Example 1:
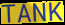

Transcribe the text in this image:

TANK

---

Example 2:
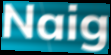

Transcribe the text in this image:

Naig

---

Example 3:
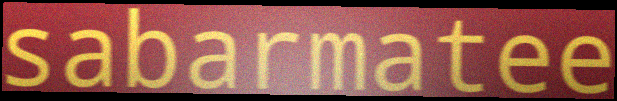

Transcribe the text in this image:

sabarmatee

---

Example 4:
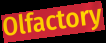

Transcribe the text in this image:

Olfactory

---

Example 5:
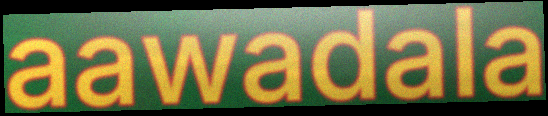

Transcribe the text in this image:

aawadala